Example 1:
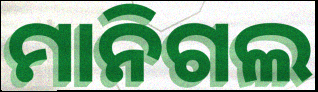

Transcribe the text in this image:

ମାନିଗଲ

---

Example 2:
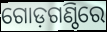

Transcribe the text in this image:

ଗୋଡ଼ଗଣ୍ଠିରେ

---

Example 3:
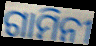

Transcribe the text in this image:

ଗାମିନୀ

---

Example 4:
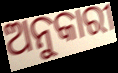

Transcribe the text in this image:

ଅନୁକାରୀ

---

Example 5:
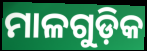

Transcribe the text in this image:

ମାଳଗୁଡ଼ିକ